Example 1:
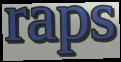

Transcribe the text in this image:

raps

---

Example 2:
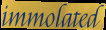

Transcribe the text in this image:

immolated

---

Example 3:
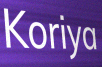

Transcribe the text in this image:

Koriya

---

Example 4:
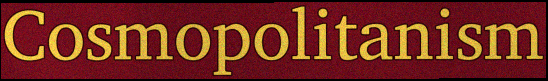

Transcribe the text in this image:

Cosmopolitanism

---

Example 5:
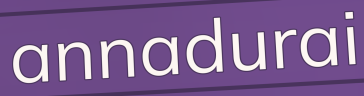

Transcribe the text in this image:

annadurai